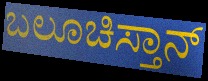
ಬಲೂಚಿಸ್ತಾನ್